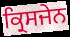
ਕ੍ਰਿਸਜੇਨ